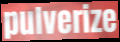
pulverize